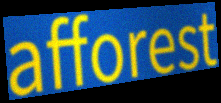
afforest